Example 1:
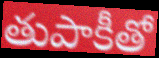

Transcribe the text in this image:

తుపాకీతో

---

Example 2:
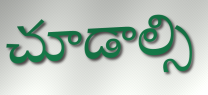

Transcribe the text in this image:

చూడాల్సి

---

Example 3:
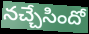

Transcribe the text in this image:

నచ్చేసిందో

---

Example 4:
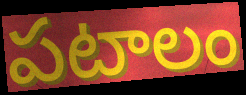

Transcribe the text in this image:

పటాలం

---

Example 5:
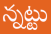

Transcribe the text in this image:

న్నట్టు